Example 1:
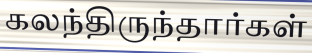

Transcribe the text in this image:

கலந்திருந்தார்கள்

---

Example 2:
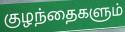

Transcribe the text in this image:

குழந்தைகளும்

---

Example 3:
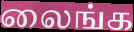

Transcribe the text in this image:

லைங்க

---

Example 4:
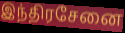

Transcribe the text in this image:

இந்திரசேனை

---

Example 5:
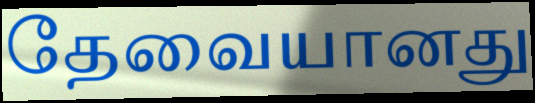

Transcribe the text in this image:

தேவையானது